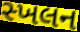
સ્ખલન